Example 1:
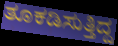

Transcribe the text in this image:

ತೂಕಡಿಸುತ್ತಿದ್ದ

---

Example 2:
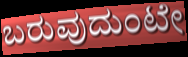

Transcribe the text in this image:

ಬರುವುದುಂಟೇ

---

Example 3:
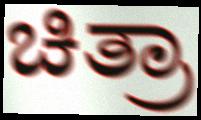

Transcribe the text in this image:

ಚಿತ್ರಾ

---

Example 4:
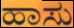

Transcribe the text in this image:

ಹಾಸು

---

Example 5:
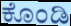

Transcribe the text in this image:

ಕೊಂಡಿ